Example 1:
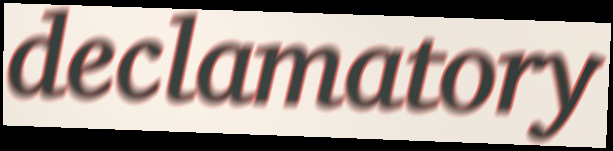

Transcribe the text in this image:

declamatory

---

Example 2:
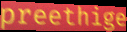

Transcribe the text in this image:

preethige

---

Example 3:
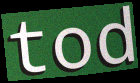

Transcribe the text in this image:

tod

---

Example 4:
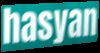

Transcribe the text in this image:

hasyan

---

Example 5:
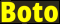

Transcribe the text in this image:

Boto